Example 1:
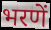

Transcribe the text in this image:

भरणें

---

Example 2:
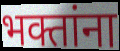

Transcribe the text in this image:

भक्तांना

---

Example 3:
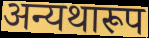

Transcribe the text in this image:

अन्यथारूप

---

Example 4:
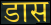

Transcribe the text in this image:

डास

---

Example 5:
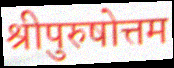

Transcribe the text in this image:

श्रीपुरुषोत्तम